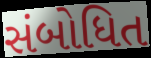
સંબોધિત